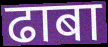
ढाबा